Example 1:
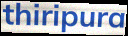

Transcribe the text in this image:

thiripura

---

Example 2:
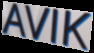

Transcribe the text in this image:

AVIK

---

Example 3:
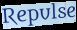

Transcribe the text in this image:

Repulse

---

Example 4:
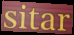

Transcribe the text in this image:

sitar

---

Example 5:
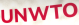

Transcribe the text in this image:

UNWTO